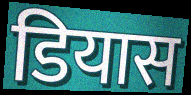
डियास